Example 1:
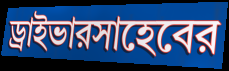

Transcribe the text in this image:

ড্রাইভারসাহেবের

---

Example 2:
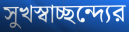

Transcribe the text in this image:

সুখস্বাচ্ছন্দ্যের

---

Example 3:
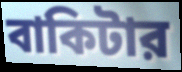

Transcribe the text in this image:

বাকিটার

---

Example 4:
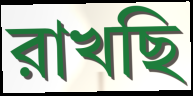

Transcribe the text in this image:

রাখছি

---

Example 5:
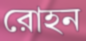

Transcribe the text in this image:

রোহন